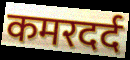
कमरदर्द